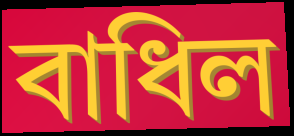
বাধিল